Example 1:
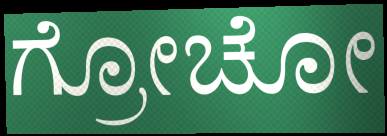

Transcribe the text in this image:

ಗ್ರೋಚೋ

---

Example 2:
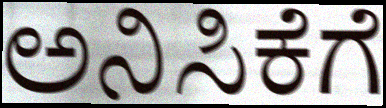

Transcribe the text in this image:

ಅನಿಸಿಕೆಗೆ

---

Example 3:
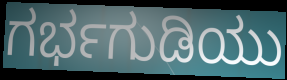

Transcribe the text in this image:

ಗರ್ಭಗುಡಿಯು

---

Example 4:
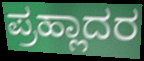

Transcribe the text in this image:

ಪ್ರಹ್ಲಾದರ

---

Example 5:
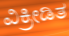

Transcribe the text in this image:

ವಿಕ್ರೀಡಿತ